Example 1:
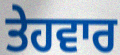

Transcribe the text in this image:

ਤੇਹਵਾਰ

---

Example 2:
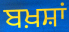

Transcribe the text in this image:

ਬਖ਼ਸ਼ਾਂ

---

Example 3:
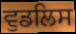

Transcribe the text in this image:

ਵੁਡਲਿਸ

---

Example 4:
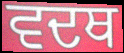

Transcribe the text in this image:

ਵਦਥ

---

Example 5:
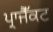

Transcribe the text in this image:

ਪ੍ਰਾਜੈੱਕਟ